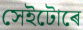
সেইটোৰে